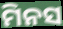
ମିନସ